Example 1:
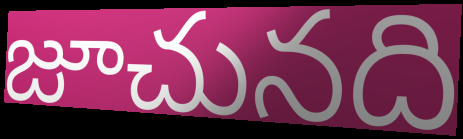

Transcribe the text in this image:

జూచునది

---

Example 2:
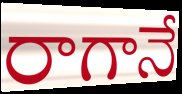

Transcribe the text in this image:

రాగానే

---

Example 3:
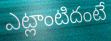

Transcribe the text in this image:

ఎట్లాంటిదంటే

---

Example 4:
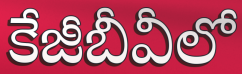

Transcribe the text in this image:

కేజీబీవీలో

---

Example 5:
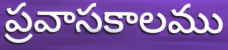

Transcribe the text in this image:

ప్రవాసకాలము